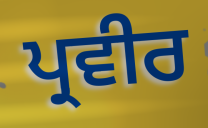
ਪ੍ਰਵੀਰ